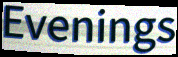
Evenings